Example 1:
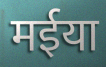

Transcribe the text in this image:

मईया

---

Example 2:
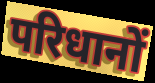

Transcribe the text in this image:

परिधानों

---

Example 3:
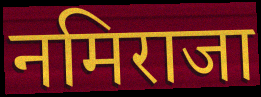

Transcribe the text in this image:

नमिराजा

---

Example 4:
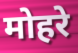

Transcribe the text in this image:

मोहरे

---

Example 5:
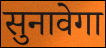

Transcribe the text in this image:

सुनावेगा